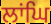
ਲਾਂਘਿ